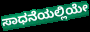
ಸಾಧನೆಯಲ್ಲಿಯೇ